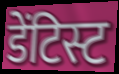
डेंटिस्ट